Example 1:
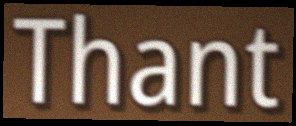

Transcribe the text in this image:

Thant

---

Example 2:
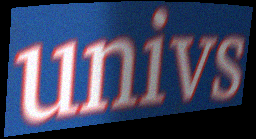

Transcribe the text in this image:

univs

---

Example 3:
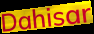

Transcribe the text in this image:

Dahisar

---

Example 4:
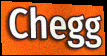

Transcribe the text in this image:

Chegg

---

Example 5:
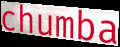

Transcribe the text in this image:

chumba